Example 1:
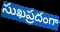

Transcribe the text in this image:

సుఖప్రదంగా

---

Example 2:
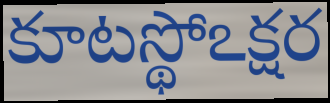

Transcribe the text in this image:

కూటస్థోఽక్షర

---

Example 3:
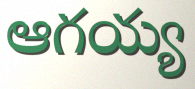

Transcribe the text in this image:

ఆగయ్య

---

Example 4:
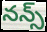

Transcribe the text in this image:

నన్స్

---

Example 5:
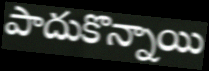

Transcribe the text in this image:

పాదుకొన్నాయి